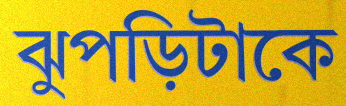
ঝুপড়িটাকে